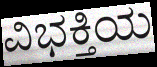
ವಿಭಕ್ತಿಯ